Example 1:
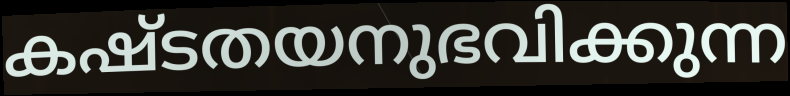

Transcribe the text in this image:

കഷ്ടതയനുഭവിക്കുന്ന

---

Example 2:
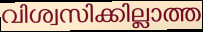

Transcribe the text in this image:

വിശ്വസിക്കില്ലാത്ത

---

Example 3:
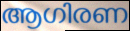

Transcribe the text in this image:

ആഗിരണ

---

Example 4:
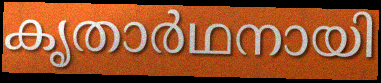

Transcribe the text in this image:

കൃതാർഥനായി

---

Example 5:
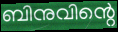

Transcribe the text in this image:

ബിനുവിന്റെ